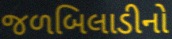
જળબિલાડીનો